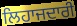
ਲਿਹਾਜਦਾਰੀ